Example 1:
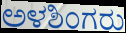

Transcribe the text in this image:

ಅಳಶಿಂಗರು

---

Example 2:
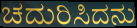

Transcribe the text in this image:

ಚದುರಿಸಿದನು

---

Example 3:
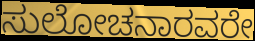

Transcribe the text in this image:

ಸುಲೋಚನಾರವರೇ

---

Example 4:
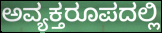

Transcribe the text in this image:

ಅವ್ಯಕ್ತರೂಪದಲ್ಲಿ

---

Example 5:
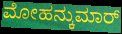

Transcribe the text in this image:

ಮೋಹನ್ಕುಮಾರ್